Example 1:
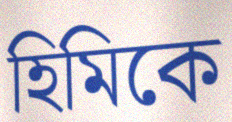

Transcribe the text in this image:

হিমিকে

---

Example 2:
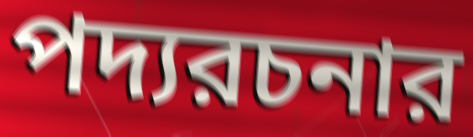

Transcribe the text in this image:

পদ্যরচনার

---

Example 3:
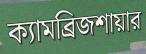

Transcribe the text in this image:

ক্যামব্রিজশায়ার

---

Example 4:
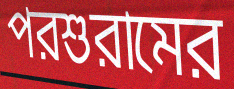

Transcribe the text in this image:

পরশুরামের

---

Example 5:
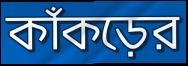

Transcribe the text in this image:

কাঁকড়ের